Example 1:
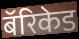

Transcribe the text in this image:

बॅरिकेड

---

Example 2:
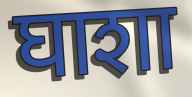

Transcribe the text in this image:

घाशा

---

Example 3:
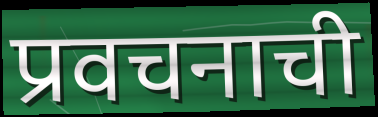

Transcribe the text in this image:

प्रवचनाची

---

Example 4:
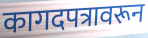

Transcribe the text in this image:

कागदपत्रावरून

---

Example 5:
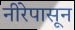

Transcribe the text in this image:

नीरेपासून